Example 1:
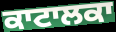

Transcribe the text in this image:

ਕਾਟਾਲਕਾ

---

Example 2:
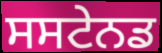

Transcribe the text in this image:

ਸਸਟੇਨਡ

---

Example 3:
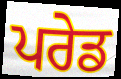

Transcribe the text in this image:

ਪਰੇਡ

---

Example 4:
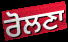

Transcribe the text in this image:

ਰੋਲਣਾ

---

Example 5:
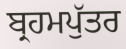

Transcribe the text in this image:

ਬ੍ਰਹਮਪੁੱਤਰ